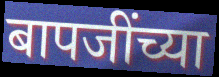
बापजींच्या